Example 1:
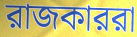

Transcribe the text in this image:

রাজকাররা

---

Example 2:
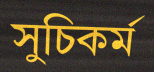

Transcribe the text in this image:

সুচিকর্ম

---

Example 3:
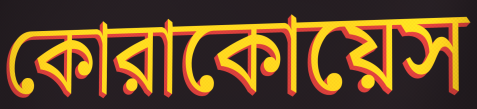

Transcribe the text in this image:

কোরাকোয়েস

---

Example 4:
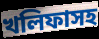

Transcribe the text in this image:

খলিফাসহ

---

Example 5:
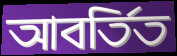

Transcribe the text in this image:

আবর্তিত